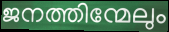
ജനത്തിന്മേലും